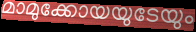
മാമുക്കോയയുടേയും